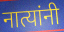
नात्यांनी